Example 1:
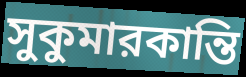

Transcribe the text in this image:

সুকুমারকান্তি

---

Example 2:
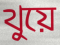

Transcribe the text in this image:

থুয়ে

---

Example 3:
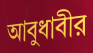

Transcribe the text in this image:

আবুধাবীর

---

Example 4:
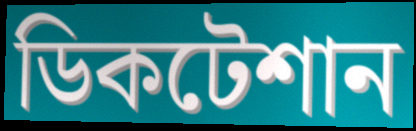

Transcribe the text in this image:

ডিকটেশান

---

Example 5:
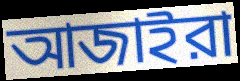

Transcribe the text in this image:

আজাইরা